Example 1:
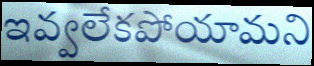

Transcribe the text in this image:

ఇవ్వలేకపోయామని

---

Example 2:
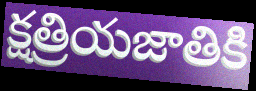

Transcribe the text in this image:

క్షత్రియజాతికి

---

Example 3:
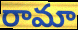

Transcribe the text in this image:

రామా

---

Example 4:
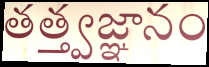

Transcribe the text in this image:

తత్త్వజ్ఞానం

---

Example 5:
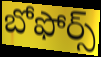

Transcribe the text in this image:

బోఫోర్స్